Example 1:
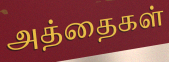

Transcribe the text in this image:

அத்தைகள்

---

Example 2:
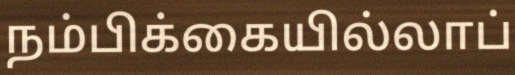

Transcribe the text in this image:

நம்பிக்கையில்லாப்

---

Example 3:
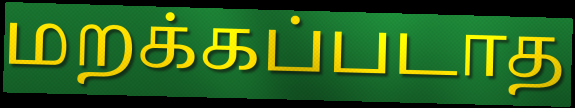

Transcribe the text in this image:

மறக்கப்படாத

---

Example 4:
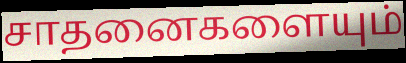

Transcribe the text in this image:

சாதனைகளையும்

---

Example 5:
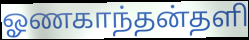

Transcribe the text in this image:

ஓணகாந்தன்தளி